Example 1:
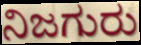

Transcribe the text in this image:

ನಿಜಗುರು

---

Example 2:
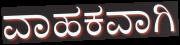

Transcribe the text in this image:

ವಾಹಕವಾಗಿ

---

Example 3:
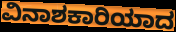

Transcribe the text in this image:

ವಿನಾಶಕಾರಿಯಾದ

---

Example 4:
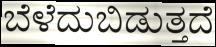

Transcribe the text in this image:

ಬೆಳೆದುಬಿಡುತ್ತದೆ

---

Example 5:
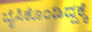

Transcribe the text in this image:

ಬೈಸಿಕೊಂಡಿದ್ದಕ್ಕೆ